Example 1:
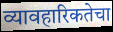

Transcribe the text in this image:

व्यावहारिकतेचा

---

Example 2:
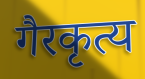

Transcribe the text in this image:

गैरकृत्य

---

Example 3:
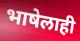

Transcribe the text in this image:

भाषेलाही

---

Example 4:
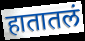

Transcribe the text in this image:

हातातलं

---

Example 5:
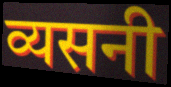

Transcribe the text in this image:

व्यसनी